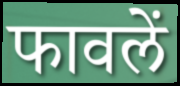
फावलें